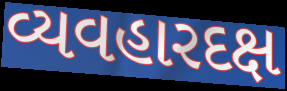
વ્યવહારદક્ષ